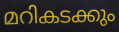
മറികടക്കും